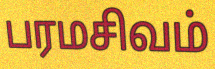
பரமசிவம்